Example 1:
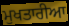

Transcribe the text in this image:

ਮੁਖਤਾਰੀਆ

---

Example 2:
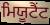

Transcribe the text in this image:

ਮਿਯੂਟੈਂਟ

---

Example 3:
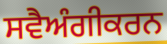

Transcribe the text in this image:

ਸਵੈਅੰਗੀਕਰਨ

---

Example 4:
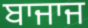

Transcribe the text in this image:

ਬਾਜਾਜ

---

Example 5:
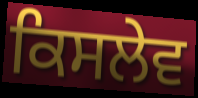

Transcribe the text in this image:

ਕਿਸਲੇਵ